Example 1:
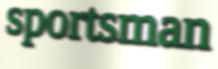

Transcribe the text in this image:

sportsman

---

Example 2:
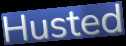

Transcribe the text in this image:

Husted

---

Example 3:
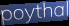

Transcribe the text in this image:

poythal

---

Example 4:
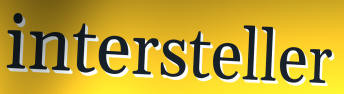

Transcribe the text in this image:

intersteller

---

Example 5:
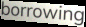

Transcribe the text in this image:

borrowing